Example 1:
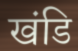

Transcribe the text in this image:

खंडि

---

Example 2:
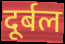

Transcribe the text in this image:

दूर्बल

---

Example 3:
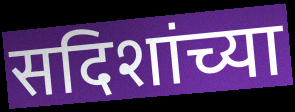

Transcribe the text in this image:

सदिशांच्या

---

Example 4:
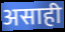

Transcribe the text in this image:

असाही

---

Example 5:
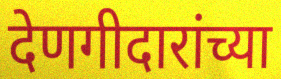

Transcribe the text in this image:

देणगीदारांच्या